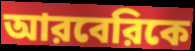
আরবেরিকে